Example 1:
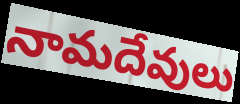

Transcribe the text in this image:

నామదేవులు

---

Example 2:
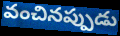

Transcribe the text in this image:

వంచినప్పుడు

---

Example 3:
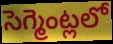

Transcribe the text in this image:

సెగ్మెంట్లలో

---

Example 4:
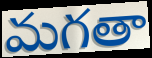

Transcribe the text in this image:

మగతా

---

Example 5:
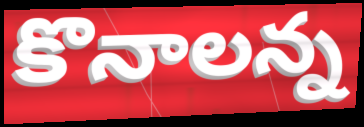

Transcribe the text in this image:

కొనాలన్న